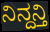
ನಿನ್ದನ್ತಿ